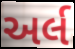
અર્લ